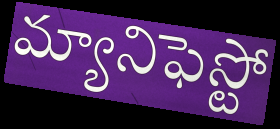
మ్యానిఫెస్టో